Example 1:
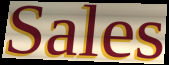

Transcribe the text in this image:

Sales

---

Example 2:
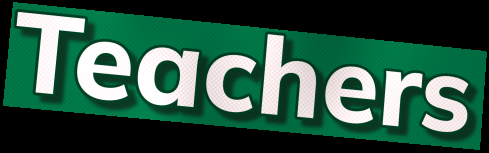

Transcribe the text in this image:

Teachers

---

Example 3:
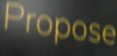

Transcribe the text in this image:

Propose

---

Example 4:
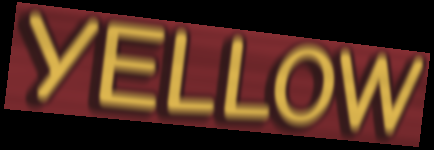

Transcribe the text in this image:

YELLOW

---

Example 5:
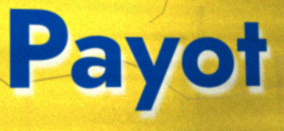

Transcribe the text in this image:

Payot